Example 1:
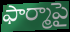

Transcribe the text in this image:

ఫార్మాపై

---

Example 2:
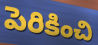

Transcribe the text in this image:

పెరికించి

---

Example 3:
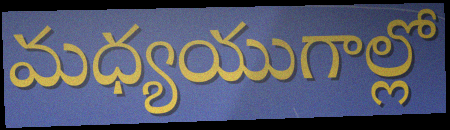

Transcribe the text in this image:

మధ్యయుగాల్లో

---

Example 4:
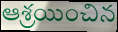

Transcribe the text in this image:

ఆశ్రయించిన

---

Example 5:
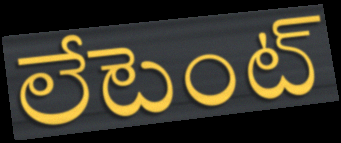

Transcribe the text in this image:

లేటెంట్